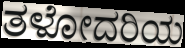
ತಳೋದರಿಯ